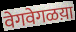
वेगवेगळय़ा